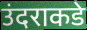
उंदराकडे